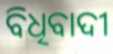
ବିଧିବାଦୀ